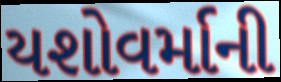
યશોવર્માની